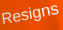
Resigns